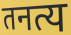
तनत्य